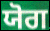
ਯੋਗ